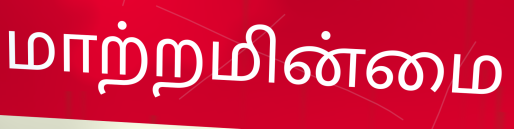
மாற்றமின்மை